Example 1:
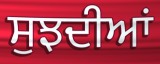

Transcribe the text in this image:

ਸੁਝਦੀਆਂ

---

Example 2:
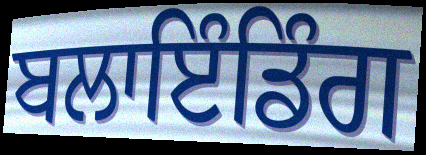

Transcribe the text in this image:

ਬਲਾਇੰਡਿੰਗ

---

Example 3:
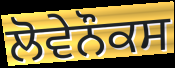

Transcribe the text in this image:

ਲੋਵੇਨੌਕਸ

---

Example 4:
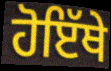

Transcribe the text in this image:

ਹੋਇੱਥੇ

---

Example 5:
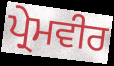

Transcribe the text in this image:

ਪ੍ਰੇਮਵੀਰ